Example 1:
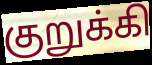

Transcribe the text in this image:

குறுக்கி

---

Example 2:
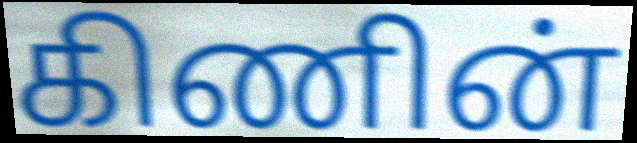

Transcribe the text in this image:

கிணின்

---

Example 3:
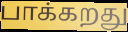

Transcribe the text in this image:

பாக்கறது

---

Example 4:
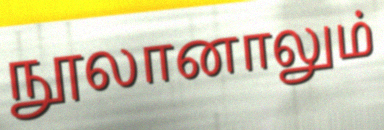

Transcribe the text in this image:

நூலானாலும்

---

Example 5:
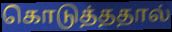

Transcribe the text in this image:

கொடுத்ததால்